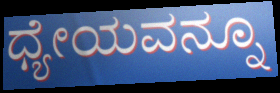
ಧ್ಯೇಯವನ್ನೂ